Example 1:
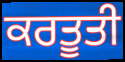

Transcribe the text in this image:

ਕਰਤੂਤੀ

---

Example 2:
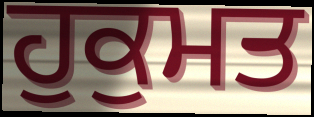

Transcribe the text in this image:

ਹੁਕੁਮਤ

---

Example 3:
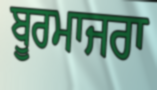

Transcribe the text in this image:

ਬੂਰਮਾਜਰਾ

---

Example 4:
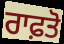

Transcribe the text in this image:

ਰਾਫ਼ਤੋ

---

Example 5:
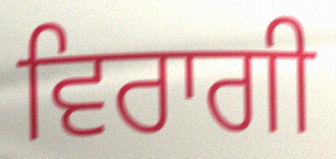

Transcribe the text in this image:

ਵਿਰਾਗੀ